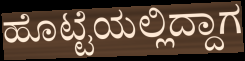
ಹೊಟ್ಟೆಯಲ್ಲಿದ್ದಾಗ